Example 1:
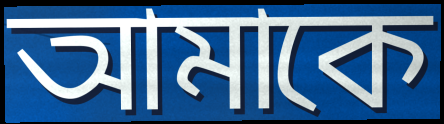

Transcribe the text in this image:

আমাকে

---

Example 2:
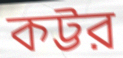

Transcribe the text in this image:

কট্টর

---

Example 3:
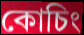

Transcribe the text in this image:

কোচিং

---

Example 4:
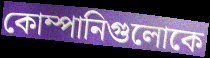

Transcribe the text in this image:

কোম্পানিগুলোকে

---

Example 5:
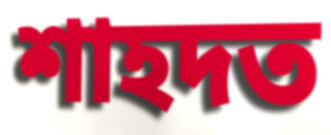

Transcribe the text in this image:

শাহদত